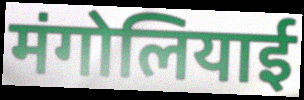
मंगोलियाई